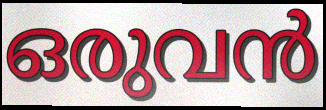
ഒരുവൻ